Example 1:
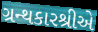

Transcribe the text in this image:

ગ્રન્થકારશ્રીએ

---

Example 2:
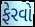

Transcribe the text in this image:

ફેરવો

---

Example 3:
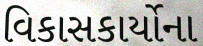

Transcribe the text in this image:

વિકાસકાર્યોના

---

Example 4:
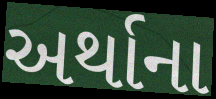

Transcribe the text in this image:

અર્થાના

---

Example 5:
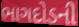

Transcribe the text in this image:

ભાગદોડની